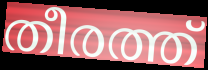
തീരത്ത്